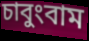
চাবুংবাম